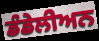
ਡੰਡੇਲੀਅਨ